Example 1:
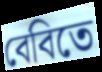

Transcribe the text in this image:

বেবিতে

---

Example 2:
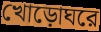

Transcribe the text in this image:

খোড়োঘরে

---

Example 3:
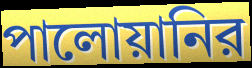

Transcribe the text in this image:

পালোয়ানির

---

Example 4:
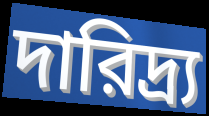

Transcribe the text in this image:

দারিদ্র্য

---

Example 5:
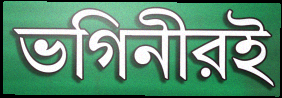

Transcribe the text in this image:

ভগিনীরই